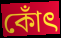
কোঁৎ